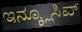
ಇನ್ಕ್ಲೂಸಿವ್